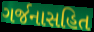
ગર્જનાસહિત